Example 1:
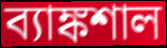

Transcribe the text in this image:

ব্যাঙ্কশাল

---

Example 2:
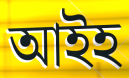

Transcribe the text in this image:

আইহ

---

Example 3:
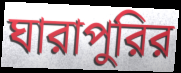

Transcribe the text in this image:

ঘারাপুরির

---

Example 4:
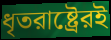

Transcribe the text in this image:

ধৃতরাষ্ট্রেরই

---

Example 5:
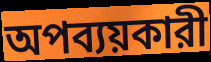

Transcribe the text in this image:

অপব্যয়কারী